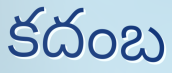
కదంబ